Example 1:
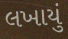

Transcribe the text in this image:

લખાયું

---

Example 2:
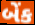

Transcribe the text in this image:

બેંક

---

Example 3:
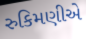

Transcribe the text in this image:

રુકિમણીએ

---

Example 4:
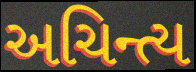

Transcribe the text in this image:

અચિન્ત્ય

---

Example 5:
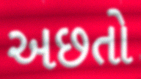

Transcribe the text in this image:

અછતો